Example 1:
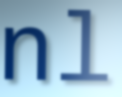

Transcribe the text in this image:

nl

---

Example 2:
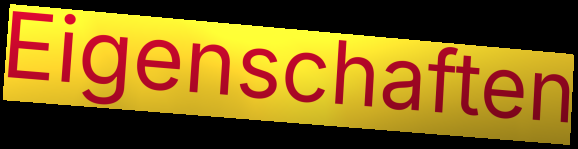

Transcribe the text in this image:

Eigenschaften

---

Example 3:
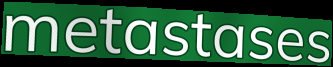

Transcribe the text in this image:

metastases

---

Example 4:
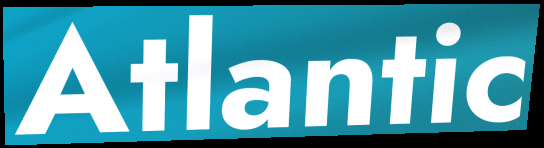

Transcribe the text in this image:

Atlantic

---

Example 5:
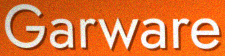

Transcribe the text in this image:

Garware